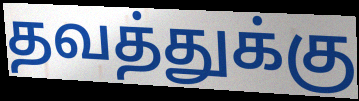
தவத்துக்கு